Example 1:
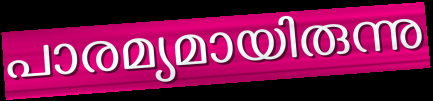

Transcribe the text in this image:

പാരമ്യമായിരുന്നു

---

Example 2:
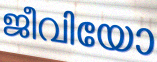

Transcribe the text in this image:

ജീവിയോ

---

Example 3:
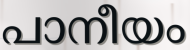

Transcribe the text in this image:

പാനീയം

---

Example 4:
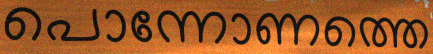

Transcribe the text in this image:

പൊന്നോണത്തെ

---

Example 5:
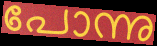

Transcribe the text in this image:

പോന്നു